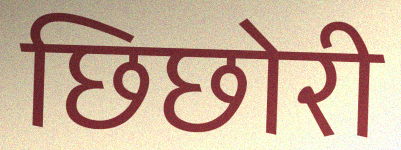
छिछोरी